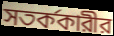
সতর্ককারীর